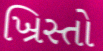
ખ્રિસ્તો